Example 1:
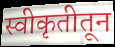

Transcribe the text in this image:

स्वीकृतीतून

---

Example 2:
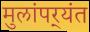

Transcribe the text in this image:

मुलांपर्यंत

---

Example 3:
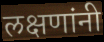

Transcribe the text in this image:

लक्षणांनी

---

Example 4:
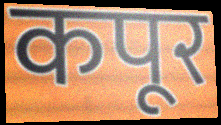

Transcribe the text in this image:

कपूर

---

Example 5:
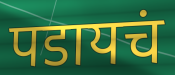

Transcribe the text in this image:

पडायचं